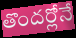
తొందర్లోనే